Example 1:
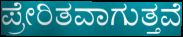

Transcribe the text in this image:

ಪ್ರೇರಿತವಾಗುತ್ತವೆ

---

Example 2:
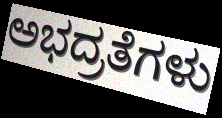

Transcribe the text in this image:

ಅಭದ್ರತೆಗಳು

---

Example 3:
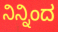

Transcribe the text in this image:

ನಿನ್ನಿಂದ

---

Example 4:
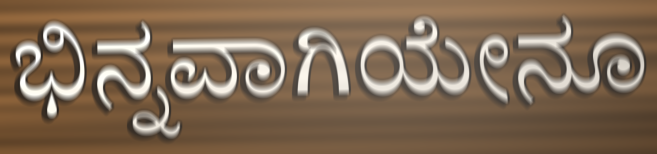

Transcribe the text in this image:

ಭಿನ್ನವಾಗಿಯೇನೂ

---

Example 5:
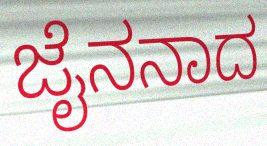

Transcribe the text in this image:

ಜೈನನಾದ